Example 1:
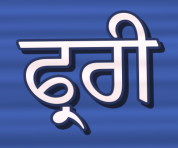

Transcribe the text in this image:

ਫ੍ਰਰੀ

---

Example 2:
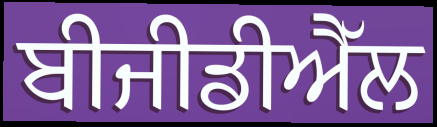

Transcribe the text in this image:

ਬੀਜੀਡੀਐੱਲ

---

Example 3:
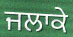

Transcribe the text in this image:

ਜਲਾਕੇ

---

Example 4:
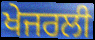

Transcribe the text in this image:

ਖੇਜਰਲੀ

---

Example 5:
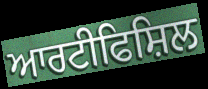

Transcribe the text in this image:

ਆਰਟੀਫਿਸ਼ਿਲ